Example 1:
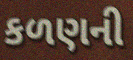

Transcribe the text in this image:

કળણની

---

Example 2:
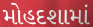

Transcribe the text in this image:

મોહદશામાં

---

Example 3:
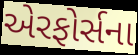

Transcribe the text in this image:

એરફોર્સના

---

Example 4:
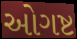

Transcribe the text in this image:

ઓગષ્ટ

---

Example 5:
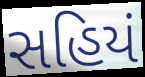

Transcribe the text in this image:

સહિયં